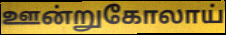
ஊன்றுகோலாய்